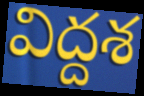
విద్దశ